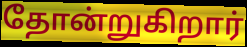
தோன்றுகிறார்